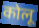
कोलू